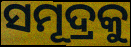
ସମୂଦ୍ରକୁ